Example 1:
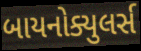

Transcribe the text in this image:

બાયનોક્યુલર્સ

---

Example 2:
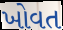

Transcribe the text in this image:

ખોવત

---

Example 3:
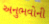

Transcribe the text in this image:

અનુભવોની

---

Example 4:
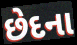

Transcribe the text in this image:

છેદના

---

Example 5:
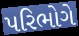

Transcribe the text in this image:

પરિભોગે